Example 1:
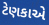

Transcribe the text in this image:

ટેણકાએ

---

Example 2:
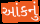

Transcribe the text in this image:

આંકનું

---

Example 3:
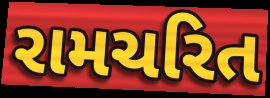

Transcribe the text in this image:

રામચરિત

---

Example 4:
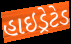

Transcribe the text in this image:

હાઇડ્રેટેડ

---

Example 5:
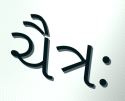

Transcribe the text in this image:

ચૈત્રઃ